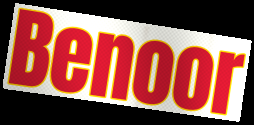
Benoor